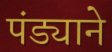
पंड्याने